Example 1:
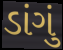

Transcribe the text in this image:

ડાંગું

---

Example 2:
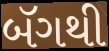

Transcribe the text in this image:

બૅગથી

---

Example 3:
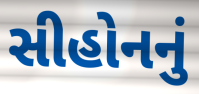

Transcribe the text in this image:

સીહોનનું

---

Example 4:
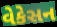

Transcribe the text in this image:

વેકેસન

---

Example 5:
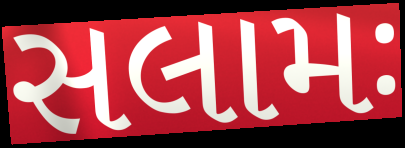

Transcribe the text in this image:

સલામઃ